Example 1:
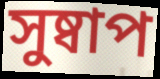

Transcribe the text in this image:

সুষ্বাপ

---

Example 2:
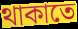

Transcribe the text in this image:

থাকাতে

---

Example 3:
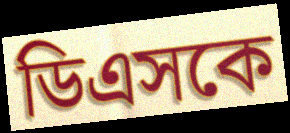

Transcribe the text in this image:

ডিএসকে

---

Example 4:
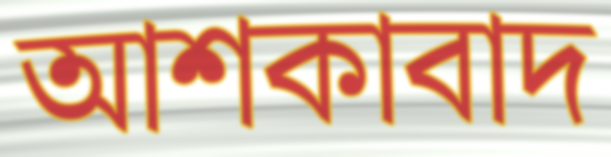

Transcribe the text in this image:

আশকাবাদ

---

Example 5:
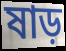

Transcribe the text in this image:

ষাড়